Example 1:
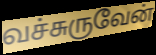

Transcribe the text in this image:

வச்சுருவேன்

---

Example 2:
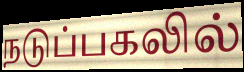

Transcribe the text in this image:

நடுப்பகலில்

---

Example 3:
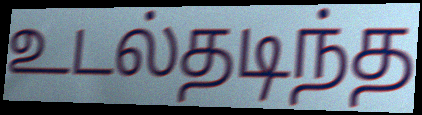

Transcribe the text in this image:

உடல்தடிந்த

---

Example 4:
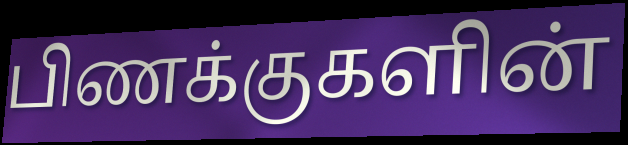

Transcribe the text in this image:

பிணக்குகளின்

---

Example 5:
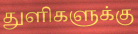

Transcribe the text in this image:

துளிகளுக்கு